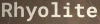
Rhyolite